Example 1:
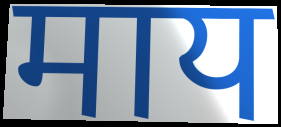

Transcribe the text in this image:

माय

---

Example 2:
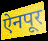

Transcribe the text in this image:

ऐनपूर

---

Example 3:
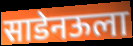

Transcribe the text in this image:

साडेनऊला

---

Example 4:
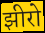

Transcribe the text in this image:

झीरो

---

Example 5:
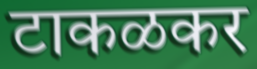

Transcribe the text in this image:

टाकळकर